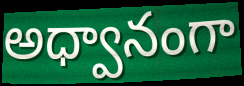
అధ్వానంగా